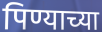
पिण्याच्या